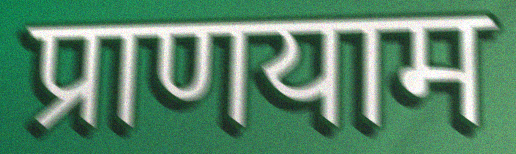
प्राणयाम